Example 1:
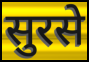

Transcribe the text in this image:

सुरसे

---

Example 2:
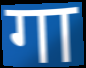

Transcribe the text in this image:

गा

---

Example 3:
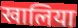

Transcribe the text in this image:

खालिया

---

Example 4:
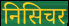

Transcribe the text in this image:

निसिचर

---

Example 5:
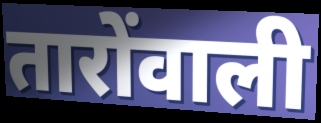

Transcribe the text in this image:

तारोंवाली